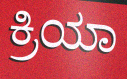
ಕ್ರಿಯಾ